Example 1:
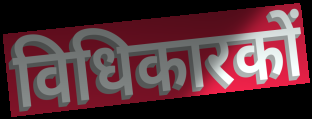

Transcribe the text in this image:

विधिकारकों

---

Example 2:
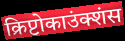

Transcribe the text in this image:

क्रिप्टोकाउंक्शंस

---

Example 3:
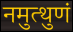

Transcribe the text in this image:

नमुत्थुणं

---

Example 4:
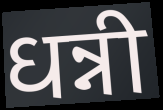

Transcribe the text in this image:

धन्नी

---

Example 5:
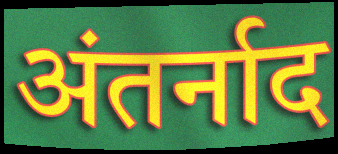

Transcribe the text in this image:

अंतर्नाद